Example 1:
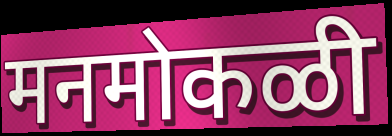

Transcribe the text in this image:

मनमोकळी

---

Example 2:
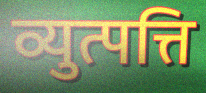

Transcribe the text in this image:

व्युत्पत्ति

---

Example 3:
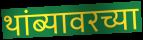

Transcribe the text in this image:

थांब्यावरच्या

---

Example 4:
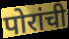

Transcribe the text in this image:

पोरांची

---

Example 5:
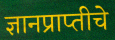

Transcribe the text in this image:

ज्ञानप्राप्तीचे